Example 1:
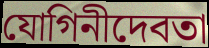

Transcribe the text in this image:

যোগিনীদেবতা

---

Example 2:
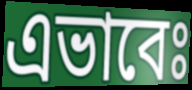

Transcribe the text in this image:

এভাবেঃ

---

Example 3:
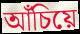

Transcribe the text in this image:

আঁচিয়ে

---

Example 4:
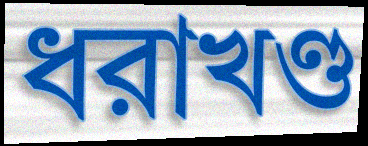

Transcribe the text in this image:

ধরাখণ্ড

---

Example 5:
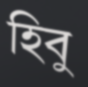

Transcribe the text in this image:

হিবু